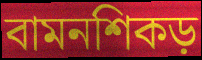
বামনশিকড়